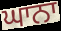
ਘਾਨਾ